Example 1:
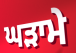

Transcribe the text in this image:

ਘੜਾਮੇ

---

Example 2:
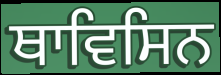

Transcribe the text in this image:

ਥਾਵਿਸਿਨ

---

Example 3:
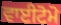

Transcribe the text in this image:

ਵਾਈਟੋਮੋ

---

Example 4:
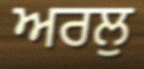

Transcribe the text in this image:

ਅਰਲੁ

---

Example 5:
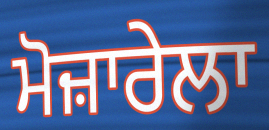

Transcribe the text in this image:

ਮੋਜ਼ਾਰੇਲਾ